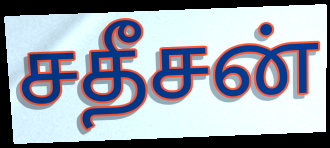
சதீசன்